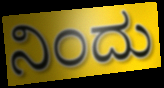
ನಿಂದು